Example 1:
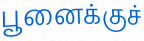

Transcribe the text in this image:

பூனைக்குச்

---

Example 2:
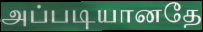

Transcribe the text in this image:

அப்படியானதே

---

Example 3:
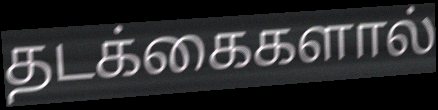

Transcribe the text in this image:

தடக்கைகளால்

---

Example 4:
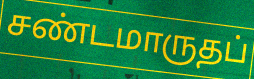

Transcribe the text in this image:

சண்டமாருதப்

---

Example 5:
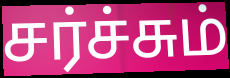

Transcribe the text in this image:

சர்ச்சும்